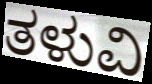
ತಳುವಿ